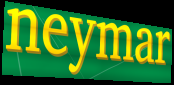
neymar